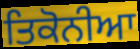
ਤਿਕੋਨੀਆ